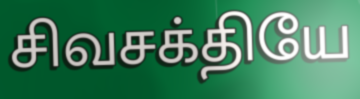
சிவசக்தியே